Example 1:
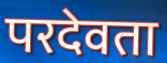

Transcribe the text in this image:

परदेवता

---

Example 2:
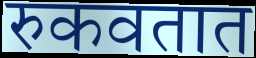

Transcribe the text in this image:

रुकवतात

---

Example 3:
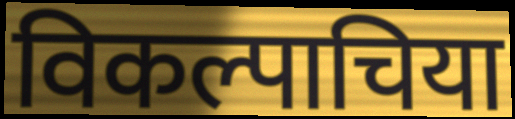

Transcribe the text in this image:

विकल्पाचिया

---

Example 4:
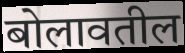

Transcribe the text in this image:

बोलावतील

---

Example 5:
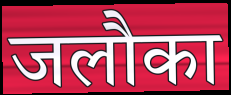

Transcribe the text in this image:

जलौका